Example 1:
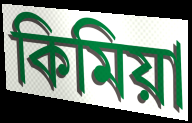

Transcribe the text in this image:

কিমিয়া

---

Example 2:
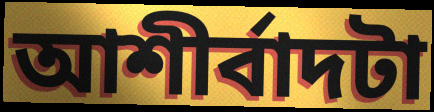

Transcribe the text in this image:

আশীর্বাদটা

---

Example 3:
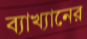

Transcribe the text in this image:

ব্যাখ্যানের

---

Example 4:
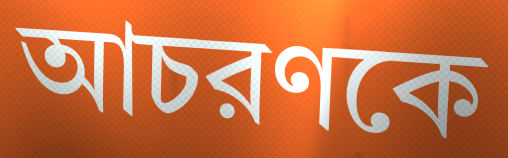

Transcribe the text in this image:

আচরণকে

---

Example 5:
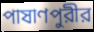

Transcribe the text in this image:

পাষাণপুরীর